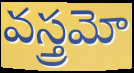
వస్త్రమో